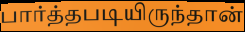
பார்த்தபடியிருந்தான்